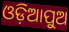
ଓଡ଼ିଆପୁଅ